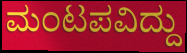
ಮಂಟಪವಿದ್ದು